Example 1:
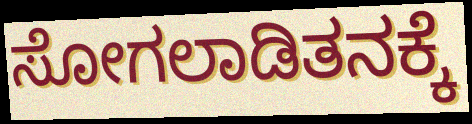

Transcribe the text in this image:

ಸೋಗಲಾಡಿತನಕ್ಕೆ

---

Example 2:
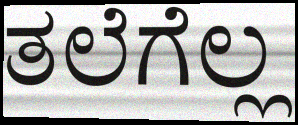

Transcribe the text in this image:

ತಲೆಗೆಲ್ಲ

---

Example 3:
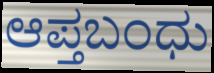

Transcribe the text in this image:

ಆಪ್ತಬಂಧು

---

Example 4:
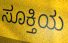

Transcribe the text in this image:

ಸೂಕ್ತಿಯ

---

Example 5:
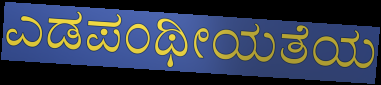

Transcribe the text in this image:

ಎಡಪಂಥೀಯತೆಯ